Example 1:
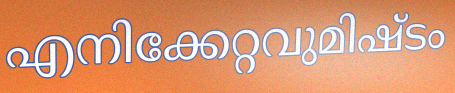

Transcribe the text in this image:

എനിക്കേറ്റവുമിഷ്ടം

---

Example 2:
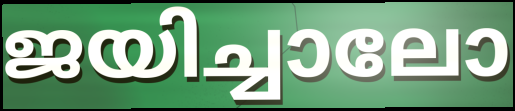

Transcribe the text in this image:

ജയിച്ചാലോ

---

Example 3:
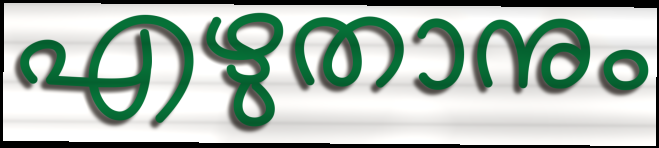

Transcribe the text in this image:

എഴുതാനും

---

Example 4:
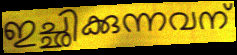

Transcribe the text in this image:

ഇച്ഛിക്കുന്നവന്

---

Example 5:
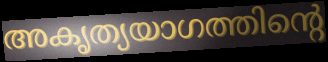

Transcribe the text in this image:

അകൃത്യയാഗത്തിന്റെ